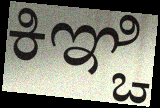
ಕಿಞ್ಚಿ